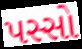
પસ્સો